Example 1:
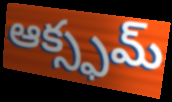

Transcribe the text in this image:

ఆక్స్ఫమ్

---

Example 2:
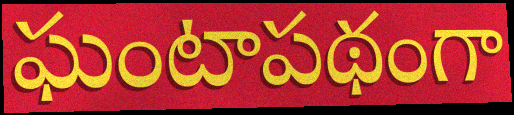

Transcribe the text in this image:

ఘంటాపథంగా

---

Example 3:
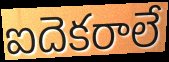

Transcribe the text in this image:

ఐదెకరాలే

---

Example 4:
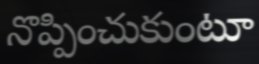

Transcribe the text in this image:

నొప్పించుకుంటూ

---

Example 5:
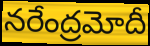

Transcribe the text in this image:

నరేంద్రమోదీ